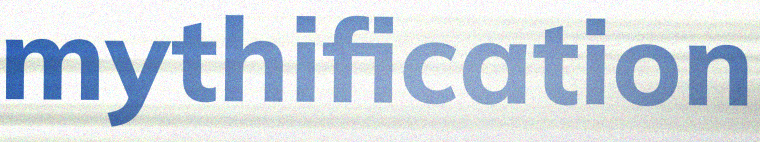
mythification